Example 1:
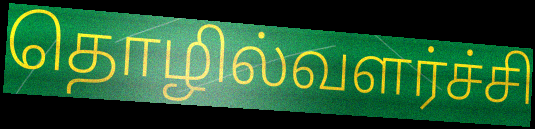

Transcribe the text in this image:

தொழில்வளர்ச்சி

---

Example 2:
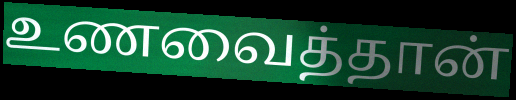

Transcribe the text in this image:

உணவைத்தான்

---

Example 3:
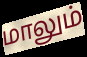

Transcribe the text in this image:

மாலும்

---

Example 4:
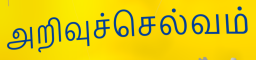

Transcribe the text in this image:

அறிவுச்செல்வம்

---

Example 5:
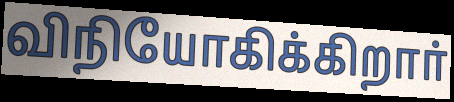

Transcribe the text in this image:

விநியோகிக்கிறார்